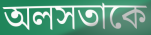
অলসতাকে